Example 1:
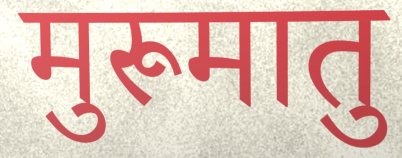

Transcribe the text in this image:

मुरूमातु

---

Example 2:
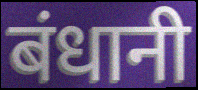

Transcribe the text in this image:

बंधानी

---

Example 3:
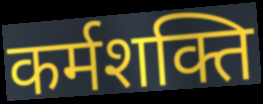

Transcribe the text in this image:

कर्मशक्ति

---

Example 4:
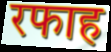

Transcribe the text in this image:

रफाह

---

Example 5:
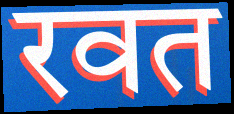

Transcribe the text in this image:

रवत